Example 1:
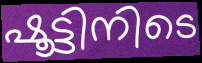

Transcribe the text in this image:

ഷൂട്ടിനിടെ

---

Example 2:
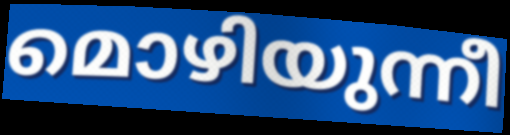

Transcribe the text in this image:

മൊഴിയുന്നീ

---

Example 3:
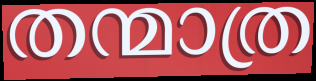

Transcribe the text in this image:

തന്മാത്ര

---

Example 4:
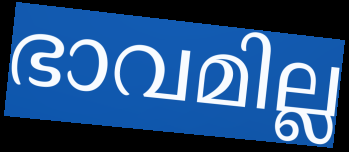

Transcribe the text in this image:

ഭാവമില്ല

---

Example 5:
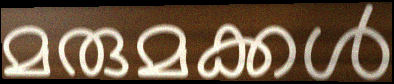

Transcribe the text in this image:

മരുമക്കൾ